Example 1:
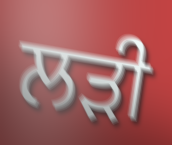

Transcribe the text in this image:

ਲਡ਼ੀ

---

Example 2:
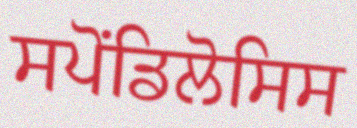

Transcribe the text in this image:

ਸਪੋਂਡਿਲੋਸਿਸ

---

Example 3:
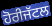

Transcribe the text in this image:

ਹੋਰੀਜੱਟਲ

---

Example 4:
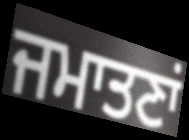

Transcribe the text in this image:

ਜਮਾਤਣਾਂ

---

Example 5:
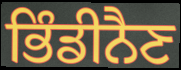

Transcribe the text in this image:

ਭਿੰਡੀਨੈਣ